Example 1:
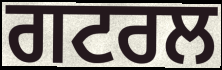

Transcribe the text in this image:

ਗਟਰਲ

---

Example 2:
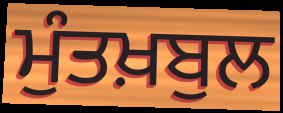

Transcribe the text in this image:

ਮੁੰਤਖ਼ਬੁਲ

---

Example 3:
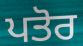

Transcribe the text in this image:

ਪਤੋਰ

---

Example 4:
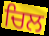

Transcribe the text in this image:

ਚਿਲ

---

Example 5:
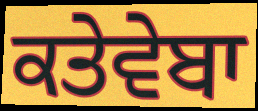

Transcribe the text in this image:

ਕਤੇਵੇਬਾ